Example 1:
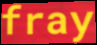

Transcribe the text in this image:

fray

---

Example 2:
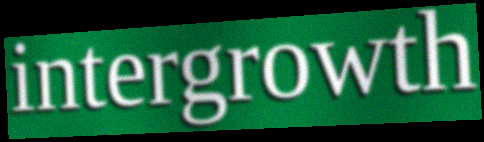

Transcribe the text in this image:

intergrowth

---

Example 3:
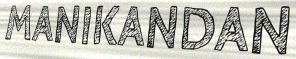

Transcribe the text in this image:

MANIKANDAN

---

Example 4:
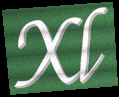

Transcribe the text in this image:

Xl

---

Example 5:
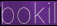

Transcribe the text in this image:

bokil